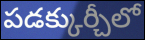
పడక్కుర్చీలో